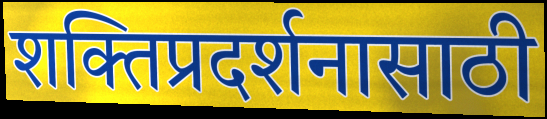
शक्तिप्रदर्शनासाठी